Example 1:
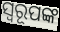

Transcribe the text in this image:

ସ୍ୱରୂପଙ୍କ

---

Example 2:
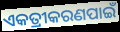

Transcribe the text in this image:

ଏକତ୍ରୀକରଣପାଇଁ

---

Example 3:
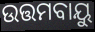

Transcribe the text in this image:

ଉତ୍ତମବାୟୁ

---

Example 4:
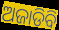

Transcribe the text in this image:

ଅଜାଡିବି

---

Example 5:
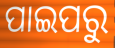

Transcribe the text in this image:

ପାଇପରୁ